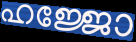
ഹജ്ജോ